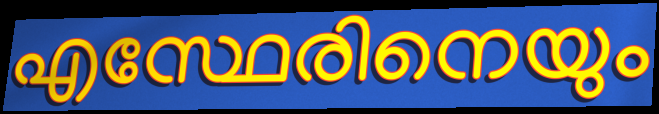
എസ്ഥേരിനെയും